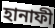
হানাফী